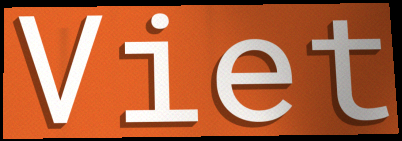
Viet